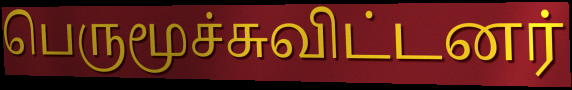
பெருமூச்சுவிட்டனர்